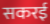
सकरई